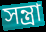
সন্ত্রা